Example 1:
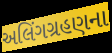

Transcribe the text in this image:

અલિંગગ્રહણના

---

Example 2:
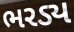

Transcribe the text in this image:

ભરડ્ય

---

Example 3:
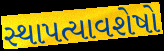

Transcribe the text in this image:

સ્થાપત્યાવશેષો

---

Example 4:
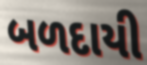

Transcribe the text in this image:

બળદાયી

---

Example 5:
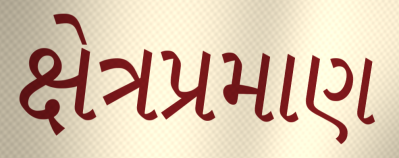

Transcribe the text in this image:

ક્ષેત્રપ્રમાણ